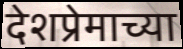
देशप्रेमाच्या